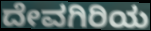
ದೇವಗಿರಿಯ